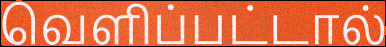
வெளிப்பட்டால்